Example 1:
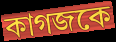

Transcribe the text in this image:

কাগজকে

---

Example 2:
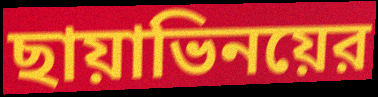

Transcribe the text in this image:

ছায়াভিনয়ের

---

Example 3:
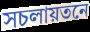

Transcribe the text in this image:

সচলায়তনে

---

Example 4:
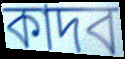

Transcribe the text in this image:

কাদব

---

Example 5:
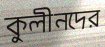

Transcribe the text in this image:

কুলীনদের